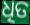
ଧିତ